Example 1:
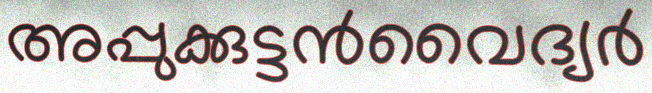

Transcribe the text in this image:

അപ്പുക്കുട്ടൻവൈദ്യർ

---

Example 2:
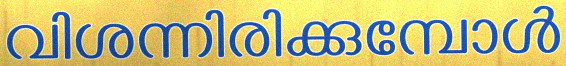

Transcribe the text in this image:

വിശന്നിരിക്കുമ്പോൾ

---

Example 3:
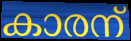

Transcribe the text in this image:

കാരന്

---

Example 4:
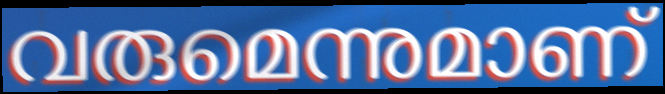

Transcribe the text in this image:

വരുമെന്നുമാണ്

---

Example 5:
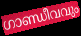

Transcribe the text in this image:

ഗാണ്ഡീവവും